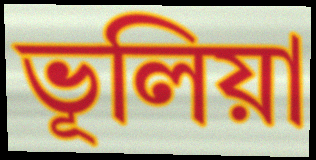
ভূলিয়া